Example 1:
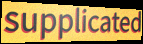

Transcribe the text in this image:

supplicated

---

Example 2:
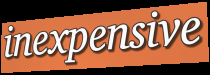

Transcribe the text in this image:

inexpensive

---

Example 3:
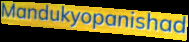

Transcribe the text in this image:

Mandukyopanishad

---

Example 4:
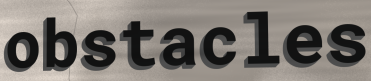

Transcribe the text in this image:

obstacles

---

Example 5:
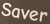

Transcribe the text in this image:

Saver